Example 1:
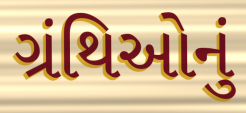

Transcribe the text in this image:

ગ્રંથિઓનું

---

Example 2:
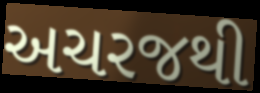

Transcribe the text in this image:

અચરજથી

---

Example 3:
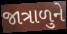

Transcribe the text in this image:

જાત્રાળુને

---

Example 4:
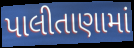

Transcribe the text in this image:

પાલીતાણામાં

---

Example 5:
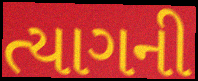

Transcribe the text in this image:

ત્‍યાગની